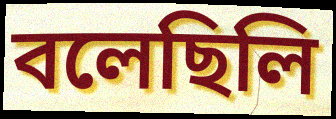
বলেছিলি